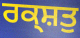
ਰਕ੍ਸ਼ਤੁ